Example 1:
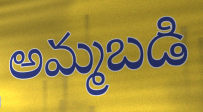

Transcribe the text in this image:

అమ్మబడి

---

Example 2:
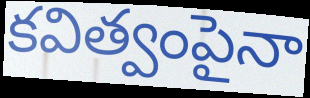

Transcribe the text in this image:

కవిత్వంపైనా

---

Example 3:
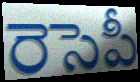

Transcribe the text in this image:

రెసెపీ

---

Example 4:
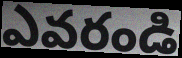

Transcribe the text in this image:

ఎవరండి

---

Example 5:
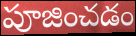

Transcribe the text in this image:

పూజించడం